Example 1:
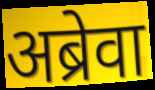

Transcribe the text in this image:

अब्रेवा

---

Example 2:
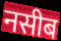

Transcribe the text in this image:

नसीब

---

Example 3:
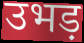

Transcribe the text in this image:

उभड़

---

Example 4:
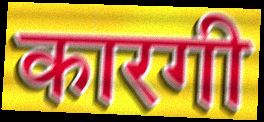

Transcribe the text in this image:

कारगी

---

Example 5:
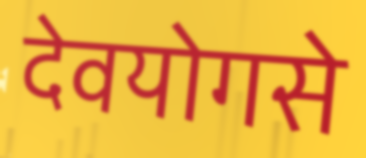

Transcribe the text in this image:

देवयोगसे